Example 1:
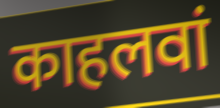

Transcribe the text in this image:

काहलवां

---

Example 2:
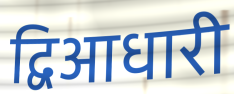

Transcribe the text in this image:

द्विआधारी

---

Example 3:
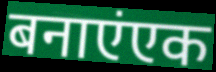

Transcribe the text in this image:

बनाएंएक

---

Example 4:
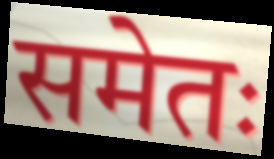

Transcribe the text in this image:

समेतः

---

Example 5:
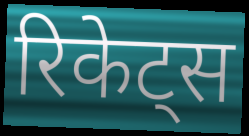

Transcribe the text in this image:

रिकेट्स